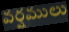
వర్షములు